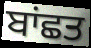
ਬਾਂਛਤ